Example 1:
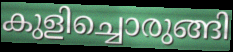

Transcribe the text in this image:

കുളിച്ചൊരുങ്ങി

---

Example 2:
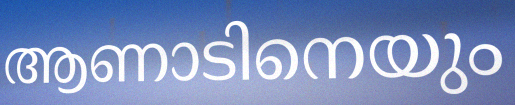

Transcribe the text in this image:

ആണാടിനെയും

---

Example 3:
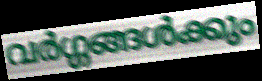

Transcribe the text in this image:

വർഗ്ഗങ്ങൾക്കും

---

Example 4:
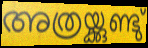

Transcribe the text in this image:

അത്രയ്ക്കുണ്ടു്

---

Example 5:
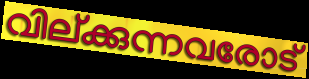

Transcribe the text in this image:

വില്ക്കുന്നവരോട്